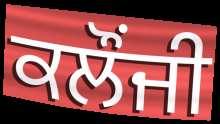
ਕਲੌਂਜੀ